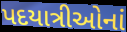
પદયાત્રીઓનાં